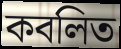
কবলিত